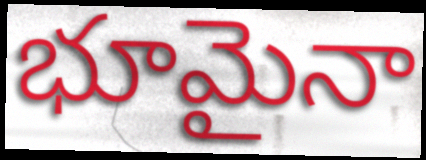
భూమైనా